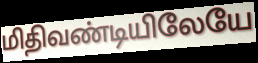
மிதிவண்டியிலேயே